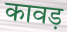
कावड़